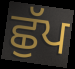
ਛੁੱਪ